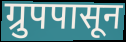
ग्रुपपासून